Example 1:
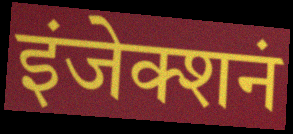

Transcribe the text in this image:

इंजेक्शनं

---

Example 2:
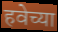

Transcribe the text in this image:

हवेच्या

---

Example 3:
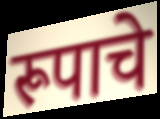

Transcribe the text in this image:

रूपाचे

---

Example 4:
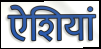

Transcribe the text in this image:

ऐशियां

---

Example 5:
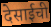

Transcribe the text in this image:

देसाईची